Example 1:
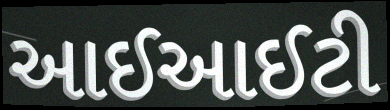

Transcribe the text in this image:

આઈઆઈટી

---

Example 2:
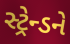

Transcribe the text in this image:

સ્ટ્રેન્ડને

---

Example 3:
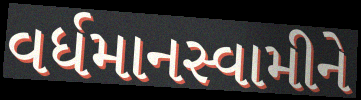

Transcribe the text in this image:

વર્ધમાનસ્વામીને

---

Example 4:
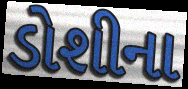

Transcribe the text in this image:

ડોશીના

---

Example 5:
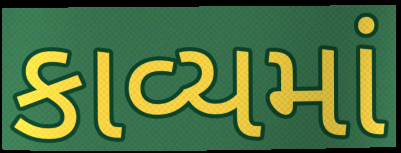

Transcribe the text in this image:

કાવ્યમાં